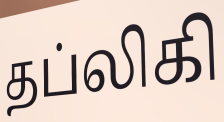
தப்லிகி